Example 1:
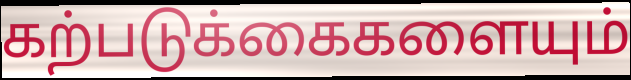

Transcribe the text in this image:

கற்படுக்கைகளையும்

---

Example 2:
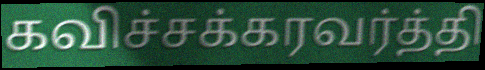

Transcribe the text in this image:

கவிச்சக்கரவர்த்தி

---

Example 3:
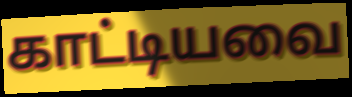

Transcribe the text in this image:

காட்டியவை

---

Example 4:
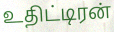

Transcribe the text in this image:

உதிட்டிரன்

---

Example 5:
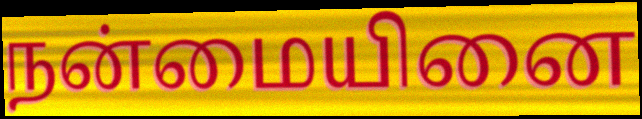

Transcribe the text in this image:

நன்மையினை